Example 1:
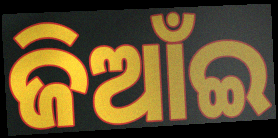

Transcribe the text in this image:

ଜିଆଁଇ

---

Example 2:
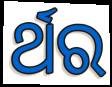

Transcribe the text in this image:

ର୍ଥର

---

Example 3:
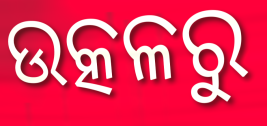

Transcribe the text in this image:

ଉତ୍କଳରୁ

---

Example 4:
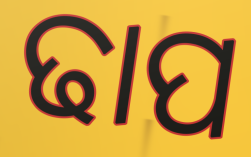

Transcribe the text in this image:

ଢାପ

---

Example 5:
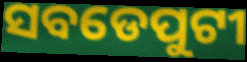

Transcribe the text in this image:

ସବଡେପୁଟୀ